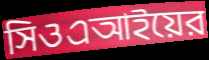
সিওএআইয়ের